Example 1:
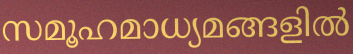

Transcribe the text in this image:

സമൂഹമാധ്യമങ്ങളിൽ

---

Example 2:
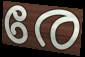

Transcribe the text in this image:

രേ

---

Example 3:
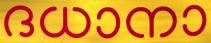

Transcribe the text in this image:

ദധാനാ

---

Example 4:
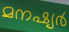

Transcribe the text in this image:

മനഷ്യർ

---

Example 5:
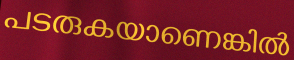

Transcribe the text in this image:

പടരുകയാണെങ്കിൽ